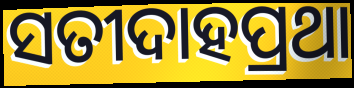
ସତୀଦାହପ୍ରଥା